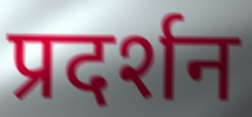
प्रदर्शन